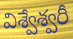
విశ్వేశ్వరీ